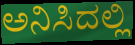
ಅನಿಸಿದಲ್ಲಿ